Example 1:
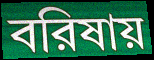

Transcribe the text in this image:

বরিষায়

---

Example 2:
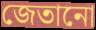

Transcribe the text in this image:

জেতানো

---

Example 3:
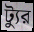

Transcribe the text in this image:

ট্যুর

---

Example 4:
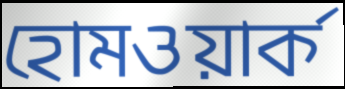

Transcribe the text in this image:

হোমওয়ার্ক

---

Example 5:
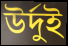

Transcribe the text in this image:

উর্দুই